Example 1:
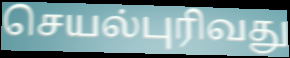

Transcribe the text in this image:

செயல்புரிவது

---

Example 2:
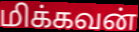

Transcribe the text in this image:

மிக்கவன்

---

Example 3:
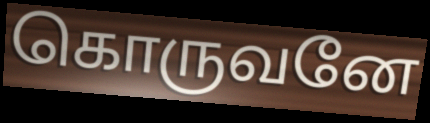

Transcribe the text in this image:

கொருவனே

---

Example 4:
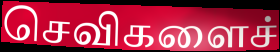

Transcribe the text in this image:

செவிகளைச்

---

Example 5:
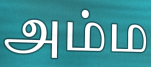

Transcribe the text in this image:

அம்ம